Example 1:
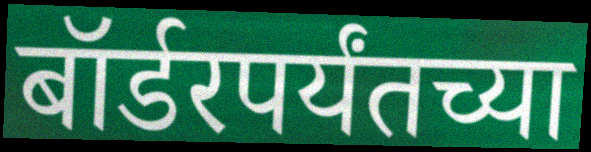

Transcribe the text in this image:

बॉर्डरपर्यंतच्या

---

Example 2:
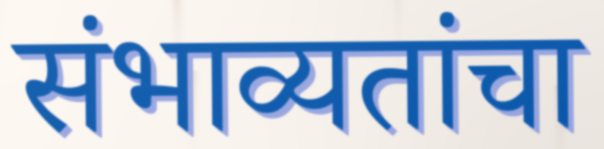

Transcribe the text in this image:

संभाव्यतांचा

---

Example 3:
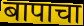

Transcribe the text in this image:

बापाचा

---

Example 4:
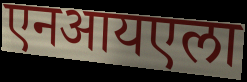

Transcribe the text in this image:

एनआयएला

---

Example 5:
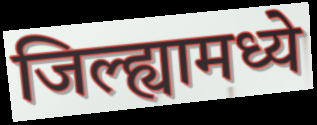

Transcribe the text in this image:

जिल्ह्यामध्ये